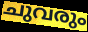
ചുവരും